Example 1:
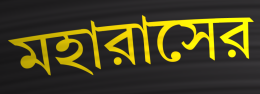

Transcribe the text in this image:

মহারাসের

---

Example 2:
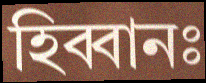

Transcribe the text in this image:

হিব্বানঃ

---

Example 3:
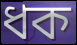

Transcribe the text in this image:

ধক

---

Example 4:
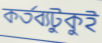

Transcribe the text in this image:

কর্তব্যটুকুই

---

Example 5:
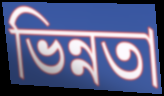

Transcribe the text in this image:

ভিন্নতা